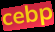
cebp